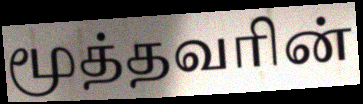
மூத்தவரின்